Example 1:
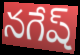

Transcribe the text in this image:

నగేష్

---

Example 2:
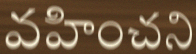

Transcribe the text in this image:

వహించని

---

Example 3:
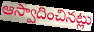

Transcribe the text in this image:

ఆస్వాదించినట్లు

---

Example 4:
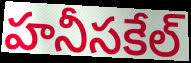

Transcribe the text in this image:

హనీసకేల్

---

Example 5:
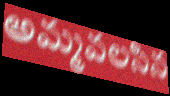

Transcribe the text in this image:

అమ్మవలసిన